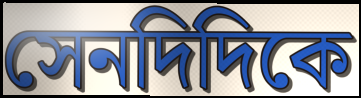
সেনদিদিকে